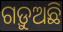
ଗଡ଼ୁଅଛି